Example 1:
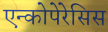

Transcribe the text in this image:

एन्कोपेरेसिस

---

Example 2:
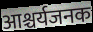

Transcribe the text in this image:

आश्चर्यजनक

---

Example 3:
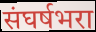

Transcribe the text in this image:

संघर्षभरा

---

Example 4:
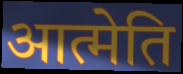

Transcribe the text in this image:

आत्मेति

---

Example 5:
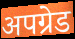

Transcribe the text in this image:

अपग्रेड